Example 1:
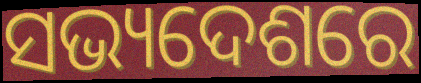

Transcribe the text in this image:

ସଭ୍ୟଦେଶରେ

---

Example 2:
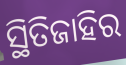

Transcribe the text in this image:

ସ୍ଥିତିଜାହିର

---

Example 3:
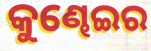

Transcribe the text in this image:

କୁଣ୍ଢେଇର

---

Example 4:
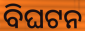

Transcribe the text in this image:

ବିଘଟନ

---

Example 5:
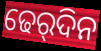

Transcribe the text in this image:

ଢେର୍‌ଦିନ